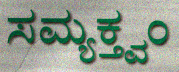
ಸಮ್ಯಕ್ತ್ವಂ